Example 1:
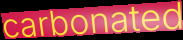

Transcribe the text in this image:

carbonated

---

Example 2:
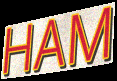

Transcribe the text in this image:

HAM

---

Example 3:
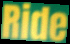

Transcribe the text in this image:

Ride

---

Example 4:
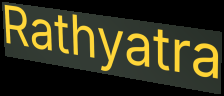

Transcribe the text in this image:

Rathyatra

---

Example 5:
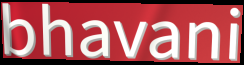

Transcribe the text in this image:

bhavani